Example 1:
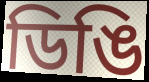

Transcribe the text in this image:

ডিঙি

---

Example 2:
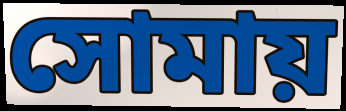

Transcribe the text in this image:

সোমায়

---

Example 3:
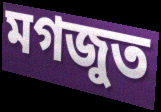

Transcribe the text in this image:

মগজুত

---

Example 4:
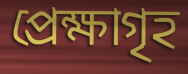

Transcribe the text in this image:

প্ৰেক্ষাগৃহ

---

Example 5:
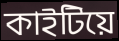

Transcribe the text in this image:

কাইটিয়ে